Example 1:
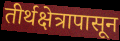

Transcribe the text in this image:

तीर्थक्षेत्रापासून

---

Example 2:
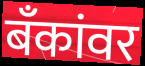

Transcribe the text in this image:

बँकांवर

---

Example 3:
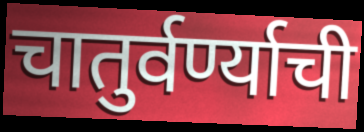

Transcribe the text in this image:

चातुर्वर्ण्याची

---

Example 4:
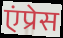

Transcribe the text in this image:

एंप्रेस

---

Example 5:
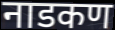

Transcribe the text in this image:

नाडकण